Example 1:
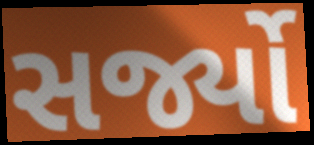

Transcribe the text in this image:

સર્જ્યો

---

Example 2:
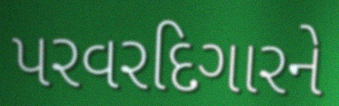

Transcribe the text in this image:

પરવરદિગારને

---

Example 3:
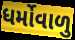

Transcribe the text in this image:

ધર્મોવાળુ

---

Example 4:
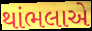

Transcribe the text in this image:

થાંભલાએ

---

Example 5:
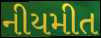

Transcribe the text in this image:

નીયમીત